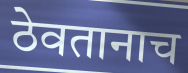
ठेवतानाच